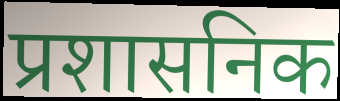
प्रशासनिक